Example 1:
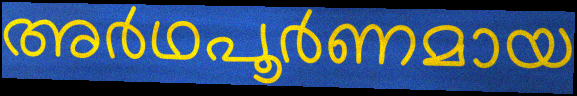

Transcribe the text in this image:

അർഥപൂർണമായ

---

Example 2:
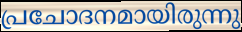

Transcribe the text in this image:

പ്രചോദനമായിരുന്നു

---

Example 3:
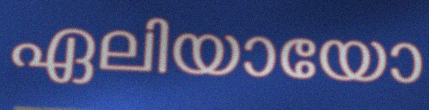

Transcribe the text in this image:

ഏലിയായോ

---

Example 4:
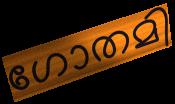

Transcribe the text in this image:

ഗോതമി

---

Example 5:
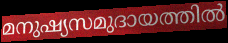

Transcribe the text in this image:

മനുഷ്യസമുദായത്തിൽ